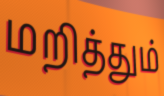
மறித்தும்